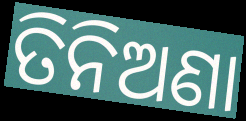
ତିନିଅଣା